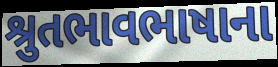
શ્રુતભાવભાષાના